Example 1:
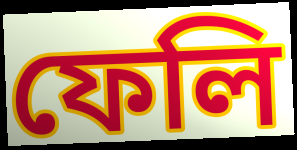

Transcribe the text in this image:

ফেলি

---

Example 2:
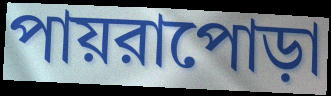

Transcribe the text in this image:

পায়রাপোড়া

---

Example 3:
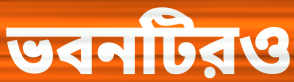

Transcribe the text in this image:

ভবনটিরও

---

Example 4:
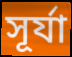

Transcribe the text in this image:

সূর্যা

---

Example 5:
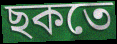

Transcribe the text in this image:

ছকতে